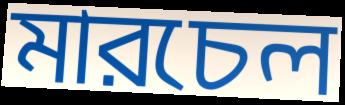
মারচেল